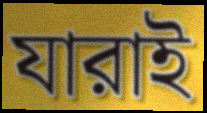
যারাই